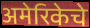
अमेरिकेचे